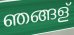
ഞങ്ങള്